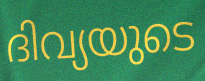
ദിവ്യയുടെ